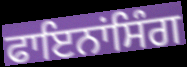
ਫਾਇਨਾਂਸਿੰਗ